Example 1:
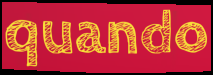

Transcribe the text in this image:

quando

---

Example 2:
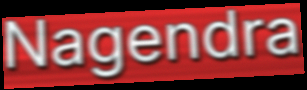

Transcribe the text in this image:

Nagendra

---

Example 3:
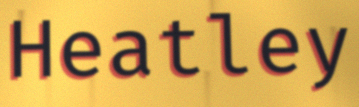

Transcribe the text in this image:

Heatley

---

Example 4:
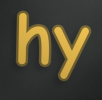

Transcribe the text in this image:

hy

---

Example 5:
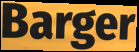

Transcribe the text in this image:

Barger